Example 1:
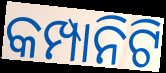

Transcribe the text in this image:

କମ୍ପାନିଟି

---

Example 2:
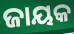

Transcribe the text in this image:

ଜାୟକ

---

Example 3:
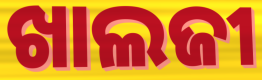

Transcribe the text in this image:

ଖାଲଜୀ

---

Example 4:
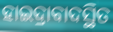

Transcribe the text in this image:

ହାଇଦ୍ରାବାଦସ୍ଥିତ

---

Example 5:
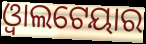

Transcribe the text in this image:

ଓ୍ୱାଲଟେୟାର